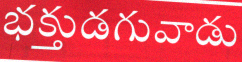
భక్తుడగువాడు